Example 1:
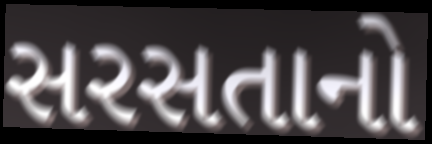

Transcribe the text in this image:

સરસતાનો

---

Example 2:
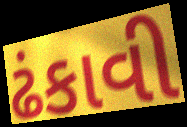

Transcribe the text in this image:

ઢંકાવી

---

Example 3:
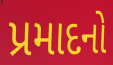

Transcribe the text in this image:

પ્રમાદનો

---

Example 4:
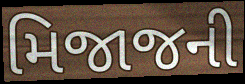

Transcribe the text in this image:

મિજાજની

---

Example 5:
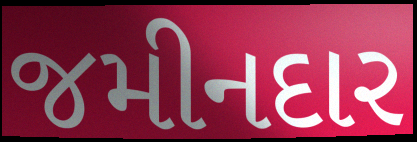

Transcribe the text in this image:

જમીનદાર